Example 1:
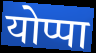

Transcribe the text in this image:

योप्पा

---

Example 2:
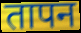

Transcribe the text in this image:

तापन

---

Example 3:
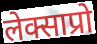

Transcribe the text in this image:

लेक्साप्रो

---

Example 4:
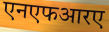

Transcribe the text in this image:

एनएफआरए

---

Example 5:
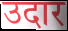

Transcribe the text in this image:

उदार